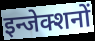
इन्जेक्शनों